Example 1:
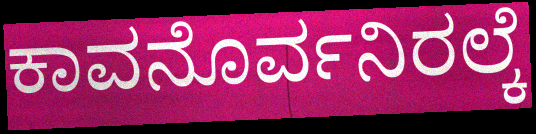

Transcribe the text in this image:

ಕಾವನೊರ್ವನಿರಲ್ಕೆ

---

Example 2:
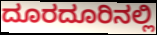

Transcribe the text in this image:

ದೂರದೂರಿನಲ್ಲಿ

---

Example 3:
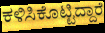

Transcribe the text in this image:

ಕಳಿಸಿಕೊಟ್ಟಿದ್ದಾರೆ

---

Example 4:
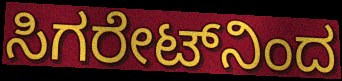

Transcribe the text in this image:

ಸಿಗರೇಟ್‌ನಿಂದ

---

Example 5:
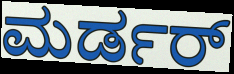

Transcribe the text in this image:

ಮರ್ಡರ್